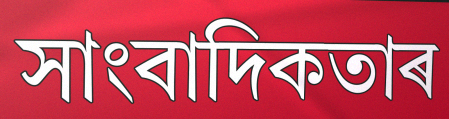
সাংবাদিকতাৰ